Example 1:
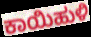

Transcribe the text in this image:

ಕಾಯಿಹುಳಿ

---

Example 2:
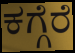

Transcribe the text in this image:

ಕಗ್ಗೆರೆ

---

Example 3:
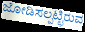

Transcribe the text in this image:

ಜೋಡಿಸಲ್ಪಟ್ಟಿರುವ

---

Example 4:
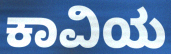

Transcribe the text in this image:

ಕಾವಿಯ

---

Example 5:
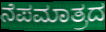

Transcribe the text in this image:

ನೆಪಮಾತ್ರದ